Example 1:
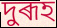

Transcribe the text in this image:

দুৰূহ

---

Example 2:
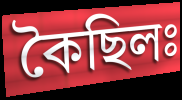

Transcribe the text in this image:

কৈছিলঃ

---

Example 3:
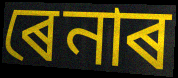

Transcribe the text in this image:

ৰেনাৰ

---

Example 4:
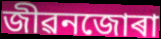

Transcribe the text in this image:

জীৱনজোৰা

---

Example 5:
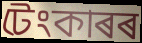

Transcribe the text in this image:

টেংকাৰৰ